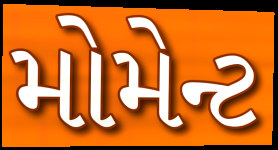
મોમેન્ટ